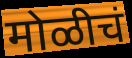
मोळीचं